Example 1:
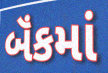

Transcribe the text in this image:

બૅંકમાં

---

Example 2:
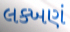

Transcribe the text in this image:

લક્ખણં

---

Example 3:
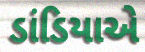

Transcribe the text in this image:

ડાંડિયાએ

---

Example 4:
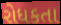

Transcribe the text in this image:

રોધકતા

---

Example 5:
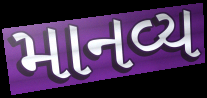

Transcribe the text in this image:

માનવ્ય